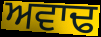
ਅਵਾਢ